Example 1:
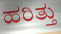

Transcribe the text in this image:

ಹರಿತ್ತು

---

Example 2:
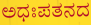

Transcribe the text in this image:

ಅಧಃಪತನದ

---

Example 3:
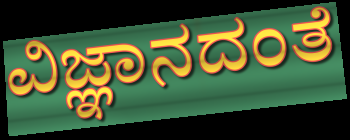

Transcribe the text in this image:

ವಿಜ್ಞಾನದಂತೆ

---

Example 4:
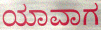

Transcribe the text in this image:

ಯಾವಾಗ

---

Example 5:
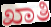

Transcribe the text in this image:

ಖಾತಿ